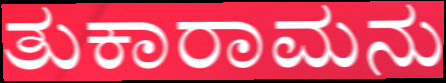
ತುಕಾರಾಮನು